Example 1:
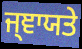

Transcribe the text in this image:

ਜ੍ਞਾਯਤੇ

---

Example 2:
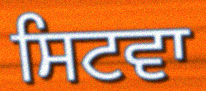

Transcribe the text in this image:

ਸਿਟਵਾ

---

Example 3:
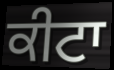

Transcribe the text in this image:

ਕੀਟਾ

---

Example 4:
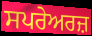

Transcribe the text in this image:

ਸਪਰੇਅਰਜ਼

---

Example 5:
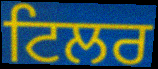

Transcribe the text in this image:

ਟਿਲਰ